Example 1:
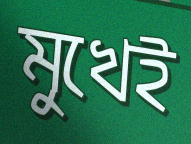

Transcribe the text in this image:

মুখেই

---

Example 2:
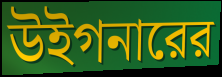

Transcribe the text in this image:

উইগনারের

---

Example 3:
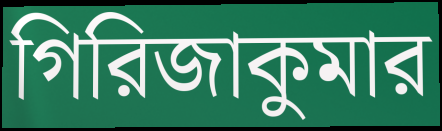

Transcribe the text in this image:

গিরিজাকুমার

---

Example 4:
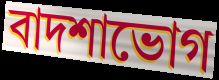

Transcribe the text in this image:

বাদশাভোগ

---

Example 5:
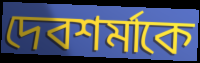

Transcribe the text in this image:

দেবশর্মাকে